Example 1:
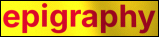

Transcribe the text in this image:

epigraphy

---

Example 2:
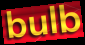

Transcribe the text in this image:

bulb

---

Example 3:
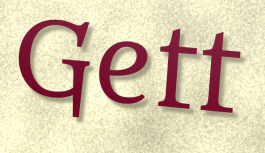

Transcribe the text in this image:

Gett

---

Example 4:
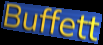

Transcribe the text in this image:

Buffett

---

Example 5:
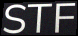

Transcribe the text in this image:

STF